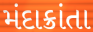
મંદાક્રાંતા